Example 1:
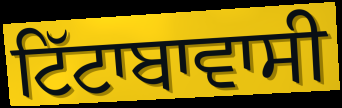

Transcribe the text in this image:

ਟਿੱਟਾਬਾਵਾਸੀ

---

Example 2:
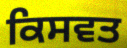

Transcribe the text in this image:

ਕਿਸਵਤ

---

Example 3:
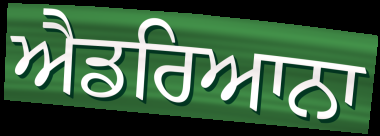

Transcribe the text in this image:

ਐਡਰਿਆਨਾ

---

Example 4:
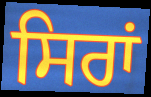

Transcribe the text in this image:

ਸਿਰਾਂ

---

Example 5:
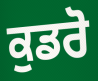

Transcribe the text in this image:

ਕੁਡਰੋ